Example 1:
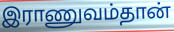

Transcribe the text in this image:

இராணுவம்தான்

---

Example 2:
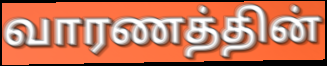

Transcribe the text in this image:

வாரணத்தின்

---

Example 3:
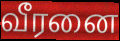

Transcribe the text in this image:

வீரனை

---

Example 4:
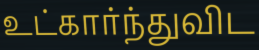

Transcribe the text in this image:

உட்கார்ந்துவிட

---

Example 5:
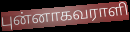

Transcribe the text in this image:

புன்னாகவராளி